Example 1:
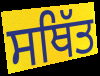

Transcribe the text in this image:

ਸਥਿੱਤ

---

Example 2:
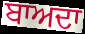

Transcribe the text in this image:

ਬਾਅਦਾ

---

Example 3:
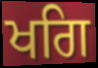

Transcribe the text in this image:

ਖਗਿ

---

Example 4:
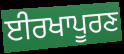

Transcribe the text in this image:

ਈਰਖਾਪੂਰਣ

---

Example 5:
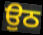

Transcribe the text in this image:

ਉਠ